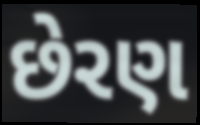
છેરણ